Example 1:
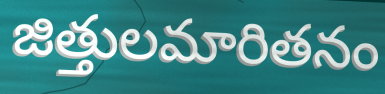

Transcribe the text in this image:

జిత్తులమారితనం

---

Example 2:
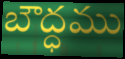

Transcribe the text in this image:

బౌద్ధము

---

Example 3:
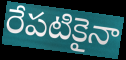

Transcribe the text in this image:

రేపటికైనా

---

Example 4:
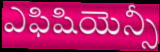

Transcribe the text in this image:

ఎఫిషియెన్సీ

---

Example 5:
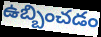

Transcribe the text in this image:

ఉబ్బించడం